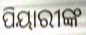
ପିୟାରୀଙ୍କ